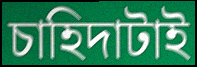
চাহিদাটাই